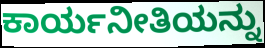
ಕಾರ್ಯನೀತಿಯನ್ನು